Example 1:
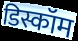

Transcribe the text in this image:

डिस्कॉम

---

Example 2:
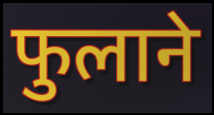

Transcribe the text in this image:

फुलाने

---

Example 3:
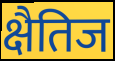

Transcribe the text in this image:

क्षैतिज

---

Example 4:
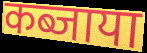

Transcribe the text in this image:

कब्जाया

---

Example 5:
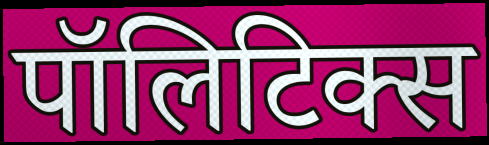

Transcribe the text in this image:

पॉलिटिक्स